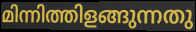
മിന്നിത്തിളങ്ങുന്നതു